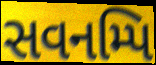
સવનમ્પિ